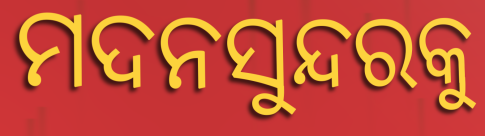
ମଦନସୁନ୍ଦରକୁ